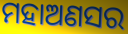
ମହାଅଣସର